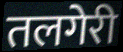
तलगेरी